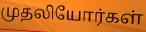
முதலியோர்கள்